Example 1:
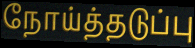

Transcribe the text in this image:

நோய்த்தடுப்பு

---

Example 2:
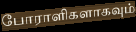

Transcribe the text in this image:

போராளிகளாகவும்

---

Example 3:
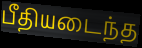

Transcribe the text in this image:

பீதியடைந்த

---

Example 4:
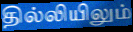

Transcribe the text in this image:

தில்லியிலும்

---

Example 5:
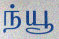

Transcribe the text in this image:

ந்யூ